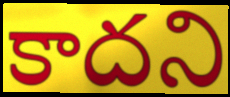
కాదని